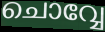
ചൊവ്വേ